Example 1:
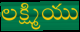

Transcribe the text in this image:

లక్ష్మియు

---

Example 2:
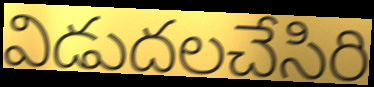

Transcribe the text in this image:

విడుదలచేసిరి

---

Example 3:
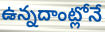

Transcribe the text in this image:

ఉన్నదాంట్లోనే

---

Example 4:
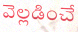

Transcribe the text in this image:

వెల్లడించే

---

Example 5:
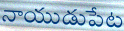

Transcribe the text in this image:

నాయుడుపేట